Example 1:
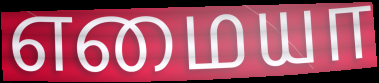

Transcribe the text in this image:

எமையா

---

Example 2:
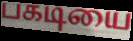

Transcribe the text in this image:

பகடியை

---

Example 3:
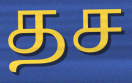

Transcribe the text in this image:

தச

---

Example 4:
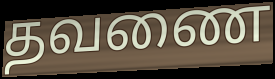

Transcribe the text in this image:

தவணை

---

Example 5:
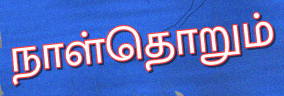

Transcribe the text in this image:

நாள்தொறும்